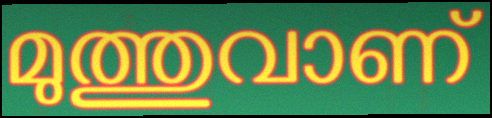
മുത്തുവാണ്